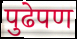
पुढेपण